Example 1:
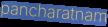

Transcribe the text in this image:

pancharatnam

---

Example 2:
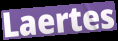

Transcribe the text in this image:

Laertes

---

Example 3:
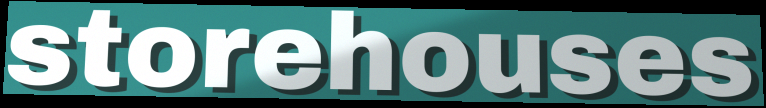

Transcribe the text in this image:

storehouses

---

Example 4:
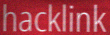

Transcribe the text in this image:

hacklink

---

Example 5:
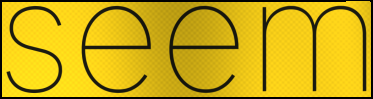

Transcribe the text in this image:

seem